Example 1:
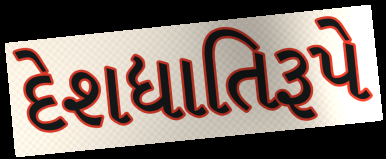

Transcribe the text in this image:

દેશદ્યાતિરૂપે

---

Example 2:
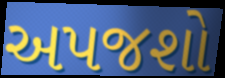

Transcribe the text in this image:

અપજશો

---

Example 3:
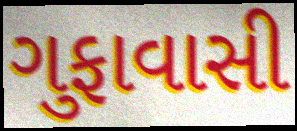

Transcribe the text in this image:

ગુફાવાસી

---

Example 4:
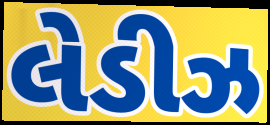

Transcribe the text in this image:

લેડીઝ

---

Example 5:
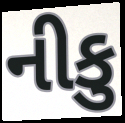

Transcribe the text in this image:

નીકુ